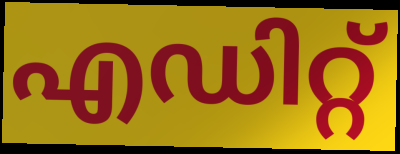
എഡിറ്റ്